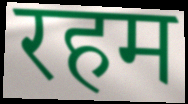
रहम